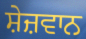
ਸ਼ੇਜ਼ਵਾਨ